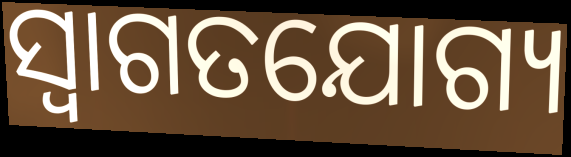
ସ୍ବାଗତଯୋଗ୍ୟ